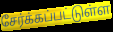
சேர்க்கப்பட்டுள்ள